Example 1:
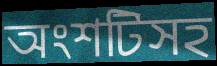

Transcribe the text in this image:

অংশটিসহ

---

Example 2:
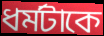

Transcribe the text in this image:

ধর্মটাকে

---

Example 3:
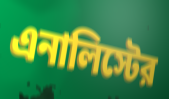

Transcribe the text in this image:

এনালিস্টের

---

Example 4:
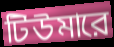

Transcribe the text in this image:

টিউমারে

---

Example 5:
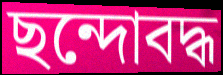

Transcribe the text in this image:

ছন্দোবদ্ধ